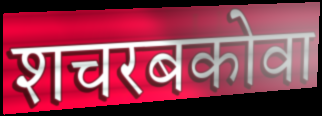
शचरबकोवा